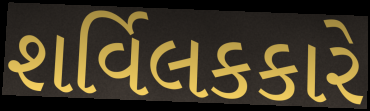
શર્વિલકકારે